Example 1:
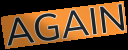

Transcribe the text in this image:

AGAIN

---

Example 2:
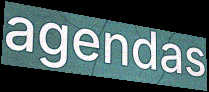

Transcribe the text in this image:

agendas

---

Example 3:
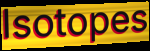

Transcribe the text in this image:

Isotopes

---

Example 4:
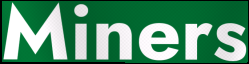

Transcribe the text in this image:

Miners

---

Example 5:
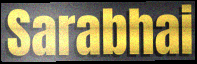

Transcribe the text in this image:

Sarabhai